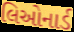
લિઓનાર્ડ